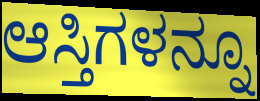
ಆಸ್ತಿಗಳನ್ನೂ